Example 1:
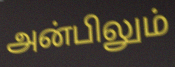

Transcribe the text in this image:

அன்பிலும்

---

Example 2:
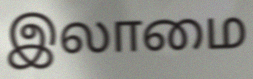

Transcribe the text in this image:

இலாமை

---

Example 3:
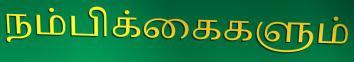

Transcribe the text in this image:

நம்பிக்கைகளும்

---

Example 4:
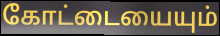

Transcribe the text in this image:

கோட்டையையும்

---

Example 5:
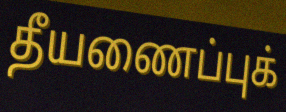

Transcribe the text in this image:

தீயணைப்புக்